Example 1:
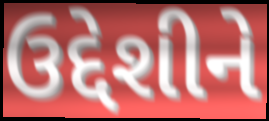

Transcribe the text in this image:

ઉદ્દેશીને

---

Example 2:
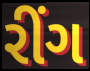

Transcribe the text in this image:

રીંગ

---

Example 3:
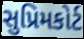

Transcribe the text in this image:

સુપ્રિમકોર્ટ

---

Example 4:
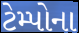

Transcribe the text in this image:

ટેમ્પોના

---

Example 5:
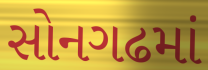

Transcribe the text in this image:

સોનગઢમાં